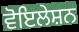
ਵੋਇਲੇਸ਼ਨ